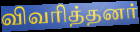
விவரித்தனர்